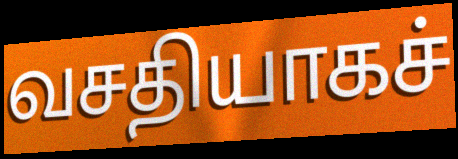
வசதியாகச்